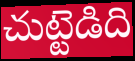
చుట్టెడిది